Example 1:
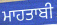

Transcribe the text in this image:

ਮਾਹਤਾਬੀ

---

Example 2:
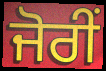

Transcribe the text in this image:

ਜੋਰੀਂ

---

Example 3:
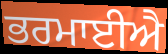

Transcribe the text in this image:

ਭਰਮਾਈਐ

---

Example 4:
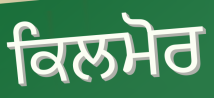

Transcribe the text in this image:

ਕਿਲਮੋਰ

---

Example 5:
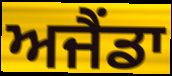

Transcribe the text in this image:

ਅਜੈਂਡਾ